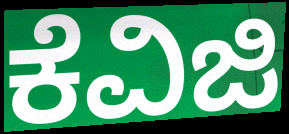
ಕೆವಿಜಿ